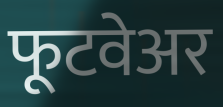
फूटवेअर